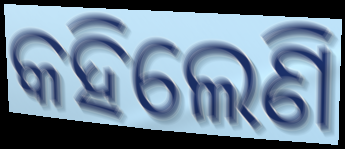
କହିଲେଣି